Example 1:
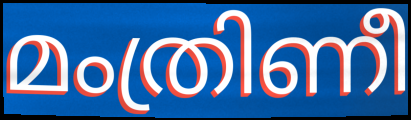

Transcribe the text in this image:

മംത്രിണീ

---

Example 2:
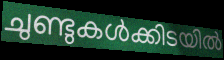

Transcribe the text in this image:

ചുണ്ടുകൾക്കിടയിൽ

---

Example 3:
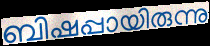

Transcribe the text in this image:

ബിഷപ്പായിരുന്നു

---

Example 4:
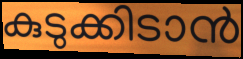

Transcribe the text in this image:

കുടുക്കിടാൻ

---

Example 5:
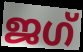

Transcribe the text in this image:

ജഗ്